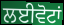
ਲਈਵੋਟਾਂ